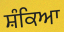
ਸ਼ੰਕਿਆ